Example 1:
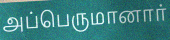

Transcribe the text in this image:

அப்பெருமானார்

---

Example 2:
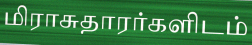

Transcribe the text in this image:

மிராசுதாரர்களிடம்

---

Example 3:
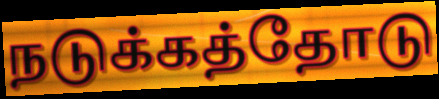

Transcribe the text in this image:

நடுக்கத்தோடு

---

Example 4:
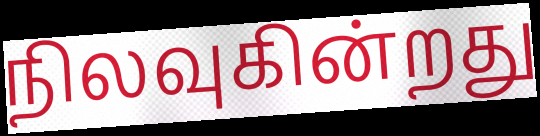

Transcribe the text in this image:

நிலவுகின்றது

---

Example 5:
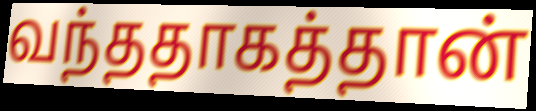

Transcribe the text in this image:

வந்ததாகத்தான்